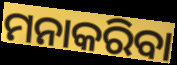
ମନାକରିବା